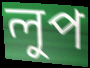
লুপ